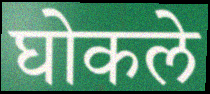
घोकले